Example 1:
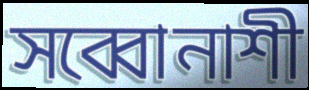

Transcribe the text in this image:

সব্বোনাশী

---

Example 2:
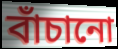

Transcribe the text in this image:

বাঁচানো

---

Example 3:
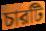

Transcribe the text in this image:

চারটি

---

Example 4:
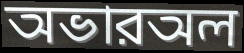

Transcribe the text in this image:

অভারঅল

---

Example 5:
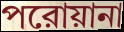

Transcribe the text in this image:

পরোয়ানা